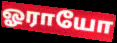
ஓராயோ